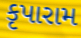
કૃપારામ